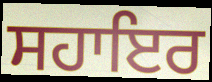
ਸਹਾਇਰ